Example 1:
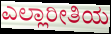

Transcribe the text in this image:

ಎಲ್ಲಾರೀತಿಯ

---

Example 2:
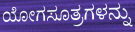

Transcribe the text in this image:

ಯೋಗಸೂತ್ರಗಳನ್ನು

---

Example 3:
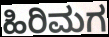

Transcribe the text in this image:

ಹಿರಿಮಗ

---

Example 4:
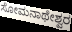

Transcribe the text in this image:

ಸೋಮನಾಥೇಶ್ವರ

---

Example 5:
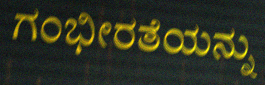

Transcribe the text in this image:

ಗಂಭೀರತೆಯನ್ನು